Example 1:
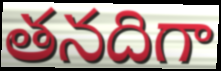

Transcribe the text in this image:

తనదిగా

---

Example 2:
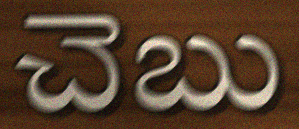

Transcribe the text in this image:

చెబు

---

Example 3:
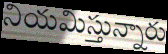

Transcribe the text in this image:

నియమిస్తున్నారు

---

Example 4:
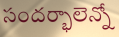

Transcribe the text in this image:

సందర్భాలెన్నో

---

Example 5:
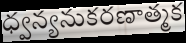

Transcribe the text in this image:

ధ్వన్యనుకరణాత్మక